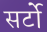
सर्टो